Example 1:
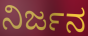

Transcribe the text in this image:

ನಿರ್ಜನ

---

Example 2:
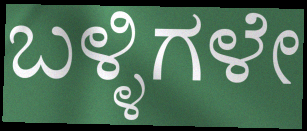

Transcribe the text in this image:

ಬಳ್ಳಿಗಳೇ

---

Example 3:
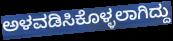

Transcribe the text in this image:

ಅಳವಡಿಸಿಕೊಳ್ಳಲಾಗಿದ್ದು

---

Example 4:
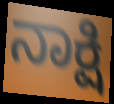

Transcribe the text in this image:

ನಾಕ್ಷಿ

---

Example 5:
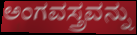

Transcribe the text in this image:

ಅಂಗವಸ್ತ್ರವನ್ನು